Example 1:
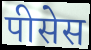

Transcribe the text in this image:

पीसेस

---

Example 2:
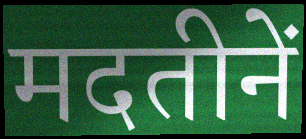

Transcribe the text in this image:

मदतीनें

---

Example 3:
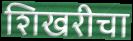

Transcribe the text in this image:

शिखरीचा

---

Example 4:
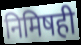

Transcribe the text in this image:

निमिषही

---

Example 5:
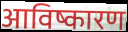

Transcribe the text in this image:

आविष्कारण